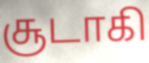
சூடாகி